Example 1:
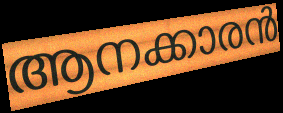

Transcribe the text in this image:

ആനക്കാരൻ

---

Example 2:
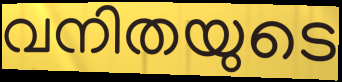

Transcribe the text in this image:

വനിതയുടെ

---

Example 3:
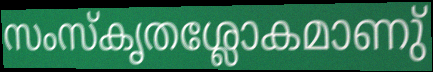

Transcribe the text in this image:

സംസ്കൃതശ്ലോകമാണു്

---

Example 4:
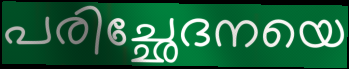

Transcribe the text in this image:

പരിച്ഛേദനയെ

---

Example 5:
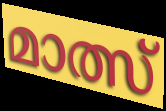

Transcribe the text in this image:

മാത്സ്